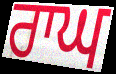
ਰਾਘ